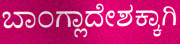
ಬಾಂಗ್ಲಾದೇಶಕ್ಕಾಗಿ